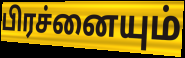
பிரச்னையும்